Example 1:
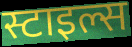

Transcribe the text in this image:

स्टाइल्स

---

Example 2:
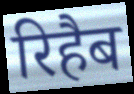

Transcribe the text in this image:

रिहैब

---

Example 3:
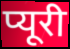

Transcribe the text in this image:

प्यूरी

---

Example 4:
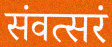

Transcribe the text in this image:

संवत्सरं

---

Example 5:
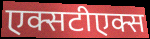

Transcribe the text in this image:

एक्सटीएक्स